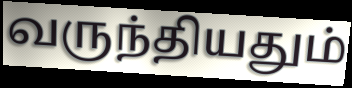
வருந்தியதும்